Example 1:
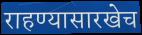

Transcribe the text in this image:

राहण्यासारखेच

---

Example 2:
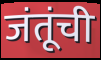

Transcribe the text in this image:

जंतूंची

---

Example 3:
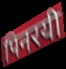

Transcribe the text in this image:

पिनरयी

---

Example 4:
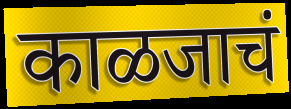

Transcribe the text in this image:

काळजाचं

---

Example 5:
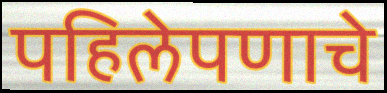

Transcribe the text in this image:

पहिलेपणाचे